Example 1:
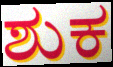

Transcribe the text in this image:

ಶುಕ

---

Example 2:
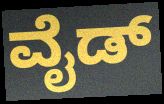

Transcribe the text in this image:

ವೈಡ್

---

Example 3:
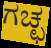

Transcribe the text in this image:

ಗಚ್ಛ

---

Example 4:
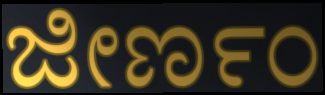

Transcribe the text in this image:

ಜೀರ್ಣಂ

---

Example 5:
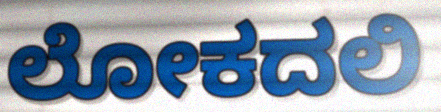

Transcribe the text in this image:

ಲೋಕದಲಿ